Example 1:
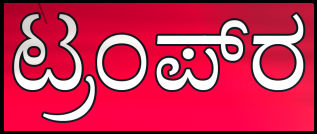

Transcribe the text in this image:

ಟ್ರಂಪ್‍ರ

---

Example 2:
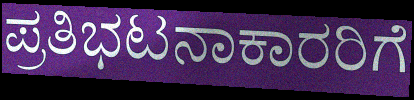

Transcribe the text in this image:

ಪ್ರತಿಭಟನಾಕಾರರಿಗೆ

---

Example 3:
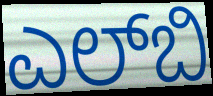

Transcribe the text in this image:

ಎಲ್‌ಬಿ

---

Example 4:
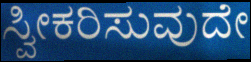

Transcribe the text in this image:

ಸ್ವೀಕರಿಸುವುದೇ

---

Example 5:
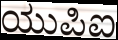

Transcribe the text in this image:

ಯುಪಿಐ